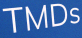
TMDs